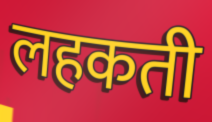
लहकती